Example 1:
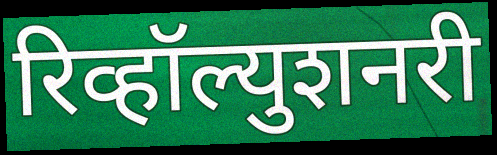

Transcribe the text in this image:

रिव्हॉल्युशनरी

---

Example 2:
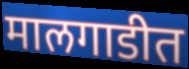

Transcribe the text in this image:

मालगाडीत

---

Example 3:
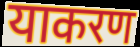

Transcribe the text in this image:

याकरण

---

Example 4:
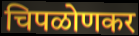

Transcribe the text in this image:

चिपळोणकर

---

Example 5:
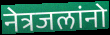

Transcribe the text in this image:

नेत्रजलांनो